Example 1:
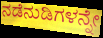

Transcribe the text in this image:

ನಡೆನುಡಿಗಳನ್ನೇ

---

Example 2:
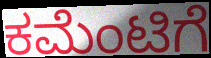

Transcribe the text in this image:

ಕಮೆಂಟಿಗೆ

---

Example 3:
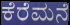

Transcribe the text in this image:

ಕೆರೆಮನೆ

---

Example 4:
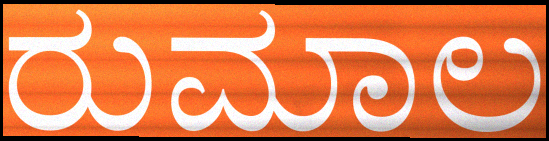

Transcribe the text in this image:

ರುಮಾಲ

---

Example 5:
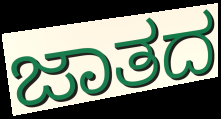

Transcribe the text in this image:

ಜಾತದ